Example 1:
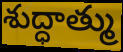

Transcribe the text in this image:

శుద్ధాత్ము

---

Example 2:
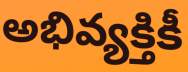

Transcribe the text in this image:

అభివ్యక్తికీ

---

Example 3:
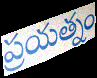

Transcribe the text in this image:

ప్రయత్నం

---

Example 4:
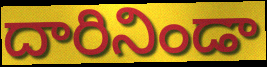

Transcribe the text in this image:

దారినిండా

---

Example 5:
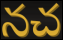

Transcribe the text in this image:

నచ